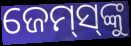
ଜେମ୍‌ସ୍‌ଙ୍କୁ